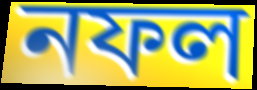
নফল